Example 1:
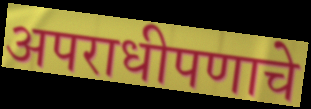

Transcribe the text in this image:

अपराधीपणाचे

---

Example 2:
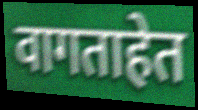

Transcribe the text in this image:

वागताहेत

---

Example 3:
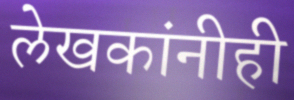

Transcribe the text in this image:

लेखकांनीही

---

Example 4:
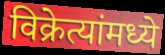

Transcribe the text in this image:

विक्रेत्यांमध्ये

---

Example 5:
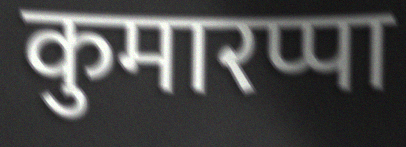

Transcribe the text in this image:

कुमारप्पा